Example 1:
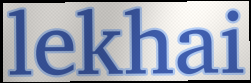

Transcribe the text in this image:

lekhai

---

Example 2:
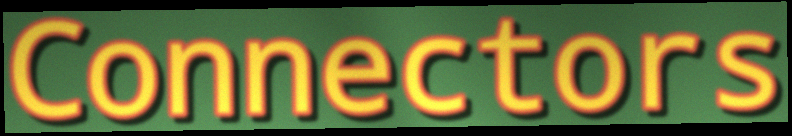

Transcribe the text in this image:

Connectors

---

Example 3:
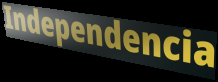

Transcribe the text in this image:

Independencia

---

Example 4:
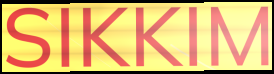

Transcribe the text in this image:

SIKKIM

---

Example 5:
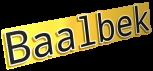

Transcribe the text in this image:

Baalbek